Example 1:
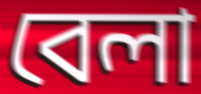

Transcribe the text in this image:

বেলা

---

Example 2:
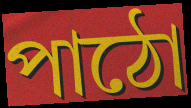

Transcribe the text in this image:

পাঠো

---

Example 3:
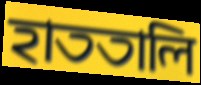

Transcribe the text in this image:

হাততালি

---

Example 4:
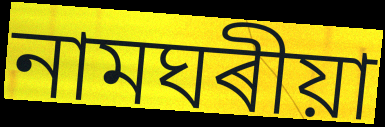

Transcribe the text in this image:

নামঘৰীয়া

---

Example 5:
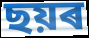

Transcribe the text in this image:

ছয়ৰ